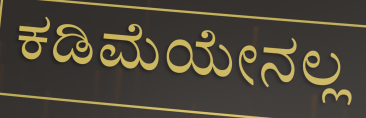
ಕಡಿಮೆಯೇನಲ್ಲ